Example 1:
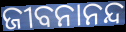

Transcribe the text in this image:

ଜୀବନାନନ୍ଦ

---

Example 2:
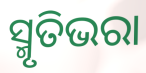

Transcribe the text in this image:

ସ୍ମୃତିଭରା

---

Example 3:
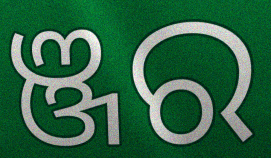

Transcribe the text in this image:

ଞ୍ଜର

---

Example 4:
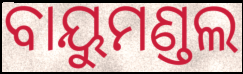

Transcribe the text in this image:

ବାୟୁମଣ୍ଡଲ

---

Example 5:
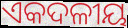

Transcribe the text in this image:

ଏକଦଳୀୟ